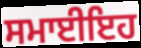
ਸਮਾਈਇਹ